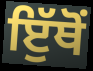
ਇੁੱਥੋਂ